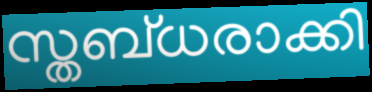
സ്തബ്ധരാക്കി